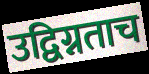
उद्विग्नताच